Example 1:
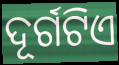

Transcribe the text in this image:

ଦୂର୍ଗଟିଏ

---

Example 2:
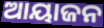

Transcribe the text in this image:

ଆୟାଜନ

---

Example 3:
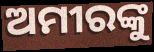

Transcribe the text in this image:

ଅମୀରଙ୍କୁ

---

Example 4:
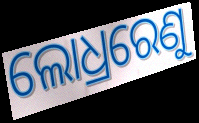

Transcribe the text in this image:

ଲୋଧ୍ରରେଣୁ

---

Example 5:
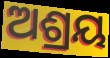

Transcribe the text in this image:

ଅଶ୍ରୟ